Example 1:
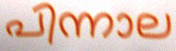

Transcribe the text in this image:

പിന്നാല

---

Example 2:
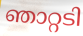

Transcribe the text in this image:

ഞാറ്റടി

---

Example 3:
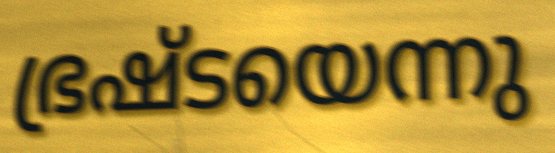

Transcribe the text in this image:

ഭ്രഷ്ടയെന്നു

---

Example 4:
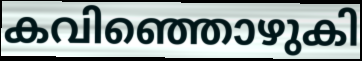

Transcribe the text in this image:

കവിഞ്ഞൊഴുകി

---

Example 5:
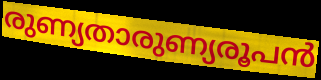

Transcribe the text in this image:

രുണ്യതാരുണ്യരൂപൻ